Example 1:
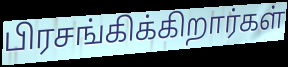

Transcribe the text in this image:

பிரசங்கிக்கிறார்கள்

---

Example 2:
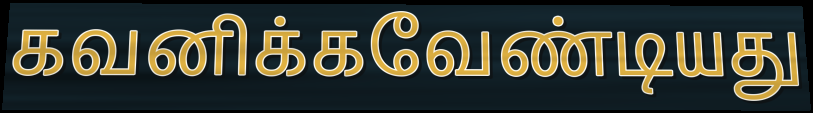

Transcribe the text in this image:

கவனிக்கவேண்டியது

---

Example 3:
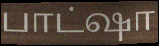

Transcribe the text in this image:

பாட்ஷா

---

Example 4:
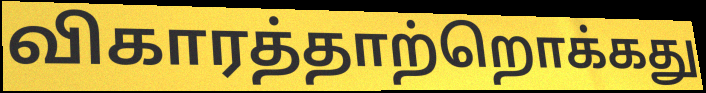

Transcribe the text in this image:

விகாரத்தாற்றொக்கது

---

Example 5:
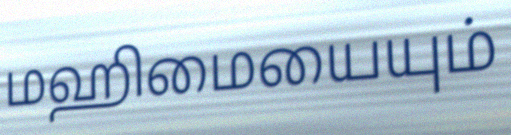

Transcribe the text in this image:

மஹிமையையும்